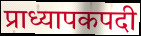
प्राध्यापकपदी